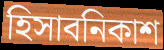
হিসাবনিকাশ